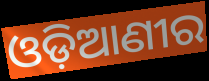
ଓଡ଼ିଆଣୀର